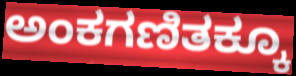
ಅಂಕಗಣಿತಕ್ಕೂ